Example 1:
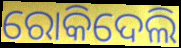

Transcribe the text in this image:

ରୋକିଦେଲି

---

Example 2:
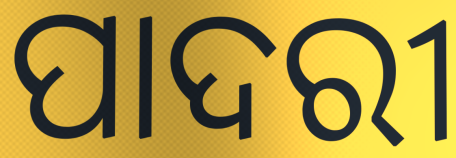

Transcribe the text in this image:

ପାଦରୀ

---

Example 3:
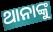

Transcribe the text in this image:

ଥାନାଙ୍କୁ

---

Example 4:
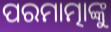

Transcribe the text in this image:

ପରମାତ୍ମାଙ୍କୁ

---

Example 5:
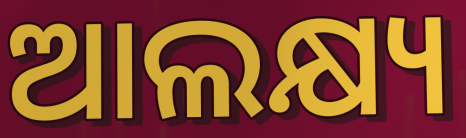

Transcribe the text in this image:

ଆଲକ୍ଷ୍ୟ